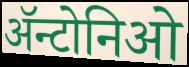
ॲन्टोनिओ